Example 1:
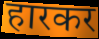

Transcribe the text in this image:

हारकर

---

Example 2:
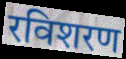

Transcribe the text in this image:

रविशरण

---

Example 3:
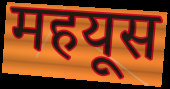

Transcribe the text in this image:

महयूस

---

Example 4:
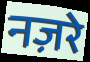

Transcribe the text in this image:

नज़रे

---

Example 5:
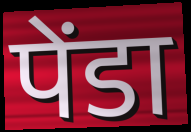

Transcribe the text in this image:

पेंडा